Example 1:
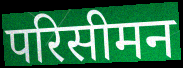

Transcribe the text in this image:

परिसीमन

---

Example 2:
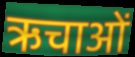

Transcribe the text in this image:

ऋचाओं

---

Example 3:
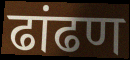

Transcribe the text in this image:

ढांढण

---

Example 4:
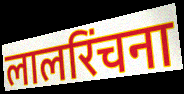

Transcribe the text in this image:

लालरिंचना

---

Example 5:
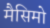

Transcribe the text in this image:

मैसिमो